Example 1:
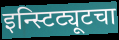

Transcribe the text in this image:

इन्स्टिट्यूटचा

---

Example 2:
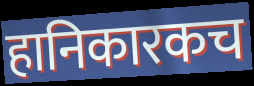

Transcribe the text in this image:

हानिकारकच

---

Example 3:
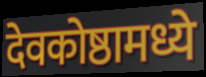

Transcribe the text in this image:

देवकोष्ठामध्ये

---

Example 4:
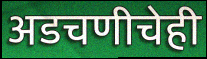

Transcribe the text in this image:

अडचणीचेही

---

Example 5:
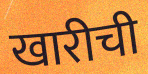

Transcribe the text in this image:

खारीची